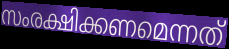
സംരക്ഷിക്കണമെന്നത്